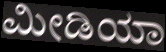
ಮೀಡಿಯಾ